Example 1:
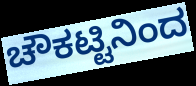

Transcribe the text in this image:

ಚೌಕಟ್ಟಿನಿಂದ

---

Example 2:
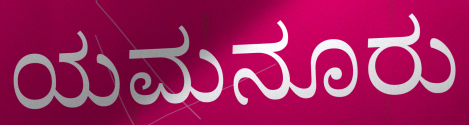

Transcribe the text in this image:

ಯಮನೂರು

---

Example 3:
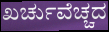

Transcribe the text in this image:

ಖರ್ಚುವೆಚ್ಚದ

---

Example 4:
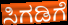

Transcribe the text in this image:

ಸಿಗಡಿಗೆ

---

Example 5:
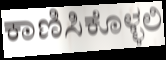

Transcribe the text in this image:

ಕಾಣಿಸಿಕೊಳ್ಳಲಿ